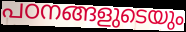
പഠനങ്ങളുടെയും